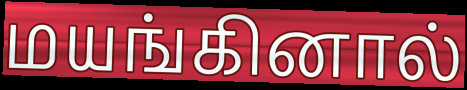
மயங்கினால்